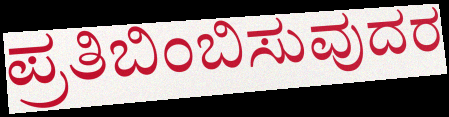
ಪ್ರತಿಬಿಂಬಿಸುವುದರ